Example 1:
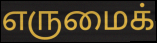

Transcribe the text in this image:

எருமைக்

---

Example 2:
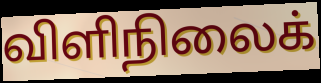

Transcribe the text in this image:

விளிநிலைக்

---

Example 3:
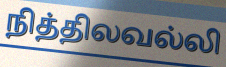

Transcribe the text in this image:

நித்திலவல்லி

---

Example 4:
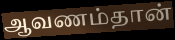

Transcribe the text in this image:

ஆவணம்தான்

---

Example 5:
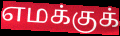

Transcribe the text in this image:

எமக்குக்